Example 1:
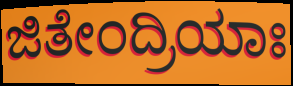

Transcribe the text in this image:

ಜಿತೇಂದ್ರಿಯಾಃ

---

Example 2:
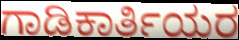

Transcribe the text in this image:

ಗಾಡಿಕಾರ್ತಿಯರ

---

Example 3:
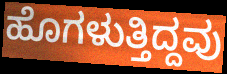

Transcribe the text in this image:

ಹೊಗಳುತ್ತಿದ್ದವು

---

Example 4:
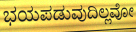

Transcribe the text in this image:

ಭಯಪಡುವುದಿಲ್ಲವೋ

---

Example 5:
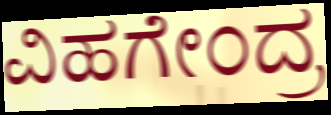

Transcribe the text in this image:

ವಿಹಗೇಂದ್ರ